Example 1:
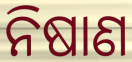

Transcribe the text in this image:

ନିଷାଣ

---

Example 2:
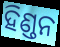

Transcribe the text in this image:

ହିଣ୍ଡନ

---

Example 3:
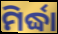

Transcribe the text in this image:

ମିର୍ଦ୍ଧା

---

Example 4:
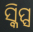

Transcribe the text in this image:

ସ୍କିପ୍ସ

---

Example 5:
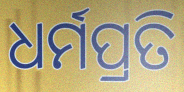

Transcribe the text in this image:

ଧର୍ମପ୍ରତି